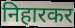
निहारकर